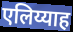
एलिय्याह